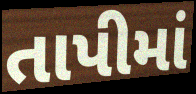
તાપીમાં